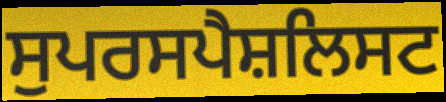
ਸੁਪਰਸਪੈਸ਼ਲਿਸਟ